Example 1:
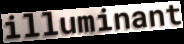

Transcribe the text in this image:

illuminant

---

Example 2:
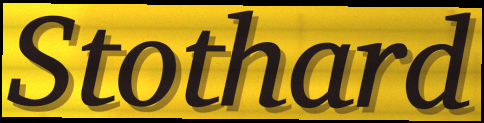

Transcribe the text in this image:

Stothard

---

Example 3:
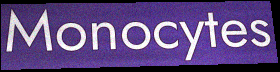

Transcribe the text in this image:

Monocytes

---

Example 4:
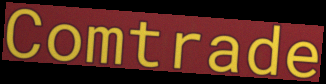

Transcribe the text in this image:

Comtrade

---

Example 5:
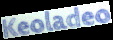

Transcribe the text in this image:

Keoladeo